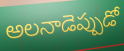
అలనాడెప్పుడో